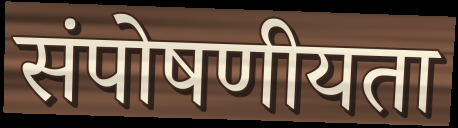
संपोषणीयता